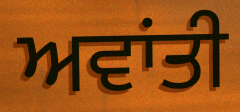
ਅਵਾਂਤੀ